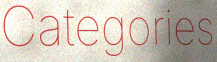
Categories